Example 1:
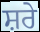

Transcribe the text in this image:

ਸ਼ਰੇ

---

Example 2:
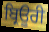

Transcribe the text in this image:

ਬ੍ਰਿਊਰੀ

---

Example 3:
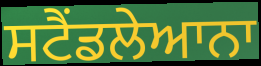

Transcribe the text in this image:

ਸਟੈਂਡਲੇਆਨਾ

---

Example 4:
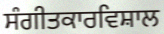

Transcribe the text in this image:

ਸੰਗੀਤਕਾਰਵਿਸ਼ਾਲ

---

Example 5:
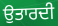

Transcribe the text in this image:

ਉਤਾਰਦੀ